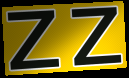
zz